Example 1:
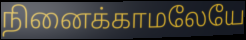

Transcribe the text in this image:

நினைக்காமலேயே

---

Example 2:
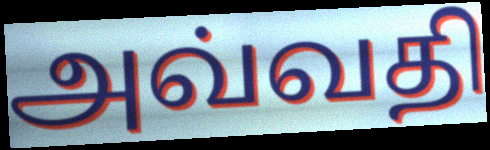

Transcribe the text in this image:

அவ்வதி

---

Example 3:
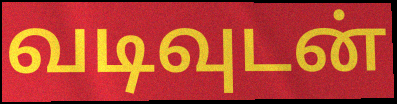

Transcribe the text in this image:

வடிவுடன்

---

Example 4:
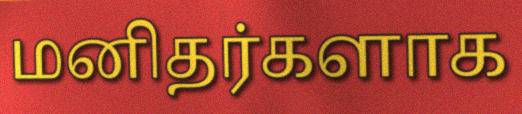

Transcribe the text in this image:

மனிதர்களாக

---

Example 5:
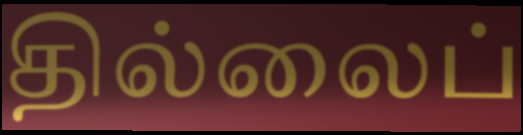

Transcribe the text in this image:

தில்லைப்